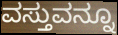
ವಸ್ತುವನ್ನೂ